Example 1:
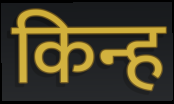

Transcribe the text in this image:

किन्ह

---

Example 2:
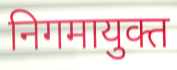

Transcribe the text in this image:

निगमायुक्त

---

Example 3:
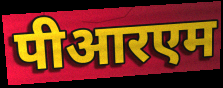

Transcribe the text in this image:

पीआरएम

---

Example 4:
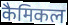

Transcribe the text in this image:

कैमिकल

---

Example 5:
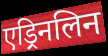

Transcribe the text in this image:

एड्रिनलिन